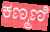
ಕಣ್ಮಣಿ